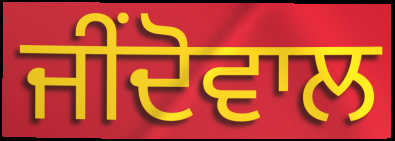
ਜੀਂਦੋਵਾਲ